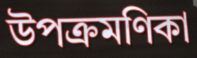
উপক্রমণিকা